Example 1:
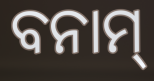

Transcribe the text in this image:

ବନାମ୍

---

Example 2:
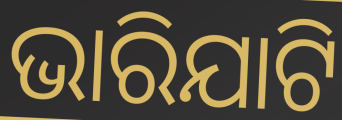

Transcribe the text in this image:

ଭାରିଯାଟି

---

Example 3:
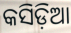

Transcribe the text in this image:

କସିଡ଼ିଆ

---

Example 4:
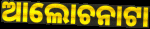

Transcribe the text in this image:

ଆଲୋଚନାଟା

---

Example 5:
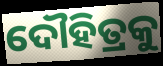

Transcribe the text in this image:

ଦୌହିତ୍ରକୁ